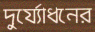
দুর্য্যোধনের